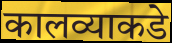
कालव्याकडे